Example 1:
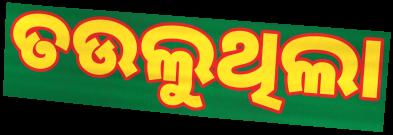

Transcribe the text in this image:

ତଉଲୁଥିଲା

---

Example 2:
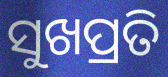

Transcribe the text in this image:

ସୁଖପ୍ରତି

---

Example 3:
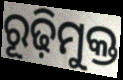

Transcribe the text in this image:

ରୂଢ଼ିମୁକ୍ତ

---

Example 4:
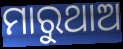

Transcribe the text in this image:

ମାରୁଥାଅ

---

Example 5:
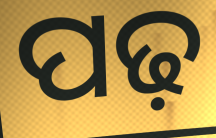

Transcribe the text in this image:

ପଢ଼